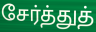
சேர்த்துத்